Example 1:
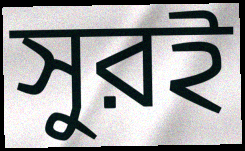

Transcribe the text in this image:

সুরই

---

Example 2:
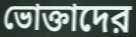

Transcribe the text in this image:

ভোক্তাদের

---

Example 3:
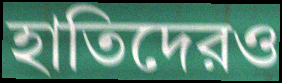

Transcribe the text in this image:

হাতিদেরও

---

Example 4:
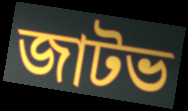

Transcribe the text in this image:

জাটভ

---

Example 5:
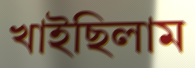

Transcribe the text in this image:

খাইছিলাম